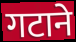
गटाने